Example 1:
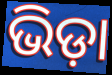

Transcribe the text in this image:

ଭିଡ଼ା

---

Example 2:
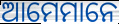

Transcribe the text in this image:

ଆମେମାନେ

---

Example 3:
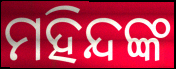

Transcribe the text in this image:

ମହିନ୍ଦଙ୍କ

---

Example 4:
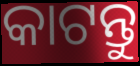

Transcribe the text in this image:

କାଟନ୍ତୁ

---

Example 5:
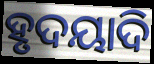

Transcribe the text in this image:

ହୃଦୟାଦି